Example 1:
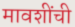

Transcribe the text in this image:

मावशींची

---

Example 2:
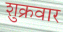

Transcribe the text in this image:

शुक्रवार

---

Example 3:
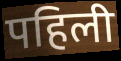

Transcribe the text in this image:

पहिली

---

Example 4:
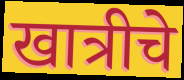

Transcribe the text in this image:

खात्रीचे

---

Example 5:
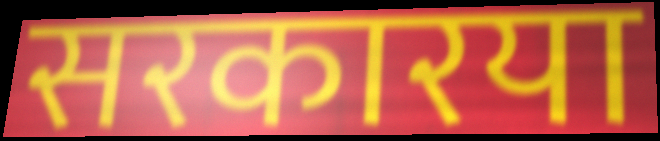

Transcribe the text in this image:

सरकारया